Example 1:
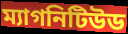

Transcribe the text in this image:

ম্যাগনিটিউড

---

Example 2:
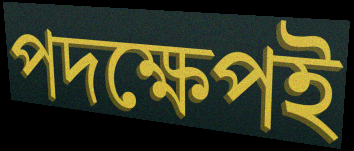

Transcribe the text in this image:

পদক্ষেপই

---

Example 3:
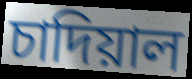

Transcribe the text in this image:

চাদিয়াল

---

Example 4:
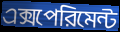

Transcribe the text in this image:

এক্সপেরিমেন্ট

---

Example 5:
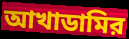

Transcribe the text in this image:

আখাডামির